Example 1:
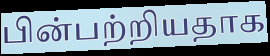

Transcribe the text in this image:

பின்பற்றியதாக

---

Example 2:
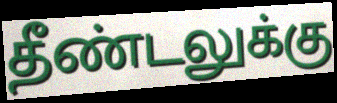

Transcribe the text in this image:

தீண்டலுக்கு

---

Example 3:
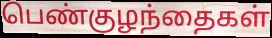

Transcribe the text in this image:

பெண்குழந்தைகள்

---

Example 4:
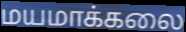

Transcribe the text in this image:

மயமாக்கலை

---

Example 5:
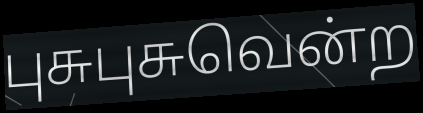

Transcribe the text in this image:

புசுபுசுவென்ற